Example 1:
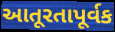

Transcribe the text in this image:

આતૂરતાપૂર્વક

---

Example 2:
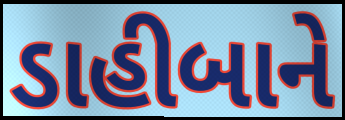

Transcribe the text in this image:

ડાહીબાને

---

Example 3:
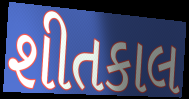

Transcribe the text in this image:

શીતકાલ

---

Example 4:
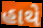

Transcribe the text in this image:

હાથે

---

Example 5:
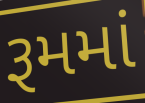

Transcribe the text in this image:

રૂમમાં